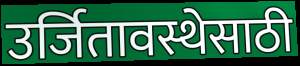
उर्जितावस्थेसाठी